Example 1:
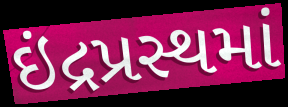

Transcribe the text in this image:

ઇંદ્રપ્રસ્થમાં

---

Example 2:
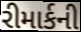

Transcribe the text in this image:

રીમાર્કની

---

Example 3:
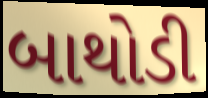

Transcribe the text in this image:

બાથોડી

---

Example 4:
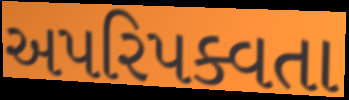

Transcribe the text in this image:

અપરિપક્વતા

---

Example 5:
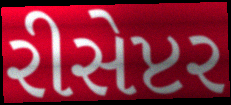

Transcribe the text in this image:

રીસેપ્ટર